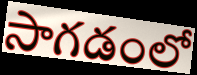
సాగడంలో